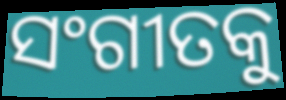
ସଂଗୀତକୁ